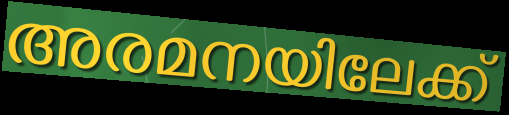
അരമനയിലേക്ക്